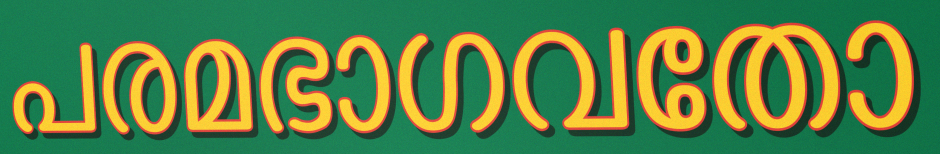
പരമഭാഗവതോ